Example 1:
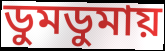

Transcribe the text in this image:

ডুমডুমায়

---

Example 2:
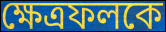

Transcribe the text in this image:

ক্ষেত্রফলকে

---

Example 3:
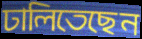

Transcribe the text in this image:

ঢালিতেছেন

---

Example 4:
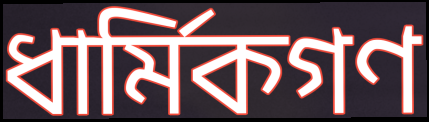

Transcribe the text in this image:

ধার্মিকগণ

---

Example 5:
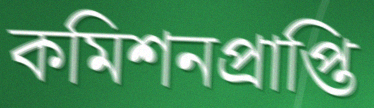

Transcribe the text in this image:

কমিশনপ্রাপ্তি